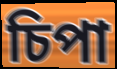
চিপা